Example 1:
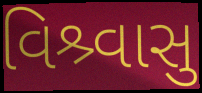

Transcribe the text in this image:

વિશ્ર્વાસુ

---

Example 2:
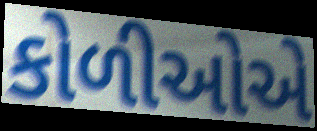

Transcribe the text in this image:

કોળીઓએ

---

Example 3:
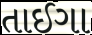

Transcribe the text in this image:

તાઈગા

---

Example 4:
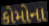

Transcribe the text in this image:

કોમોના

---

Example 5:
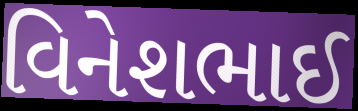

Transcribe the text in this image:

વિનેશભાઈ